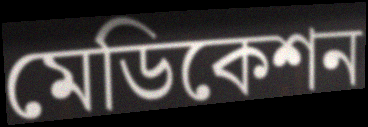
মেডিকেশন